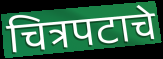
चित्रपटाचे